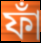
ফাঁ